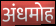
अंधमोह